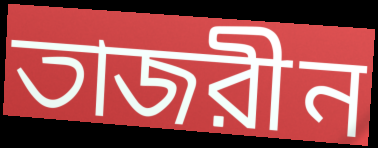
তাজরীন